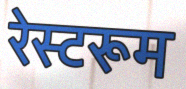
रेस्टरूम